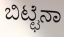
ಬಿಟ್ಟೆನಾ